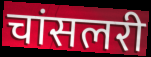
चांसलरी